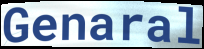
Genaral